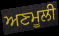
ਅਣਮੂਲੀ